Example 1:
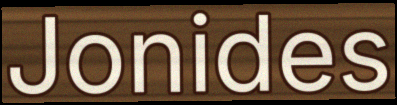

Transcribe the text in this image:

Jonides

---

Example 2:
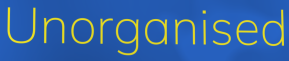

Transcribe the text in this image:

Unorganised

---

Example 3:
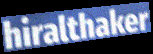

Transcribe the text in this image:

hiralthaker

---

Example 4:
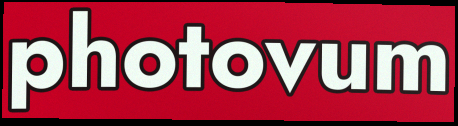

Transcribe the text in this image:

photovum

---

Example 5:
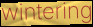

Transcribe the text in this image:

wintering